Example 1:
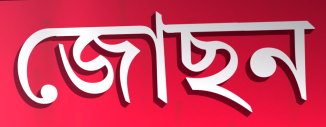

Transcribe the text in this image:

জোছন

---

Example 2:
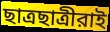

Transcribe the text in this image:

ছাত্রছাত্রীরাই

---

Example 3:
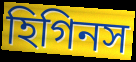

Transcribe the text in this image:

হিগিনস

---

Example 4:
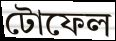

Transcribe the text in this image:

টোফেল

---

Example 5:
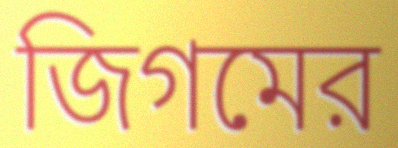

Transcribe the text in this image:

জিগমের